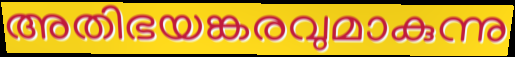
അതിഭയങ്കരവുമാകുന്നു